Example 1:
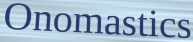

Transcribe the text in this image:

Onomastics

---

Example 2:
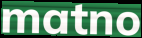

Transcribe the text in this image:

matno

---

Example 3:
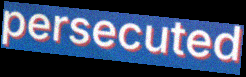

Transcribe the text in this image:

persecuted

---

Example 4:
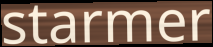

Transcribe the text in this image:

starmer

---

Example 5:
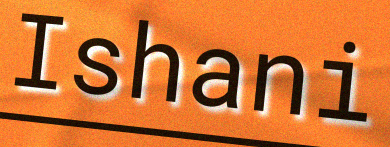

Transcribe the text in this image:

Ishani